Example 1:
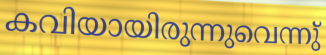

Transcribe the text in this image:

കവിയായിരുന്നുവെന്നു്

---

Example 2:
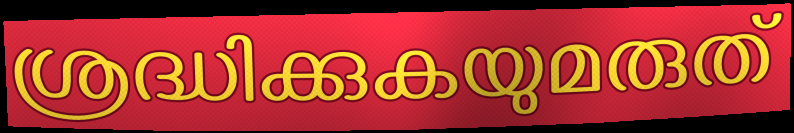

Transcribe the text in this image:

ശ്രദ്ധിക്കുകയുമരുത്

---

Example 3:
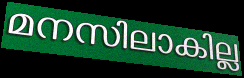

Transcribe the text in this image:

മനസിലാകില്ല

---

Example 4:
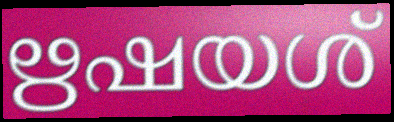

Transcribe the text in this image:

ഋഷയശ്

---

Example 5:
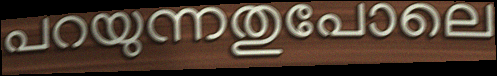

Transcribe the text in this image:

പറയുന്നതുപോലെ